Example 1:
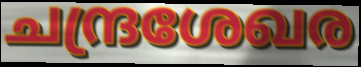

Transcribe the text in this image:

ചന്ദ്രശേഖര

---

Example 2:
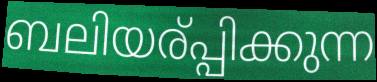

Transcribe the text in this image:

ബലിയര്പ്പിക്കുന്ന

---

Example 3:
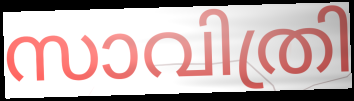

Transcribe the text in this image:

സാവിത്രി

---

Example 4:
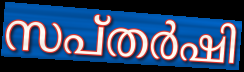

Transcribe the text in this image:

സപ്തർഷി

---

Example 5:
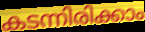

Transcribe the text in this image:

കടന്നിരിക്കാം